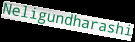
Neligundharashi